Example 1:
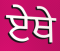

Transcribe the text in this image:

ਏਥੇ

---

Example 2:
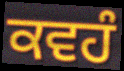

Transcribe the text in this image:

ਕਵਹੰ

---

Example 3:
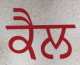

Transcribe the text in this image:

ਕੈਲ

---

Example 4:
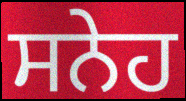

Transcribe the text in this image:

ਸਨੇਹ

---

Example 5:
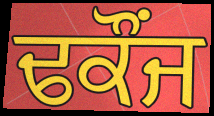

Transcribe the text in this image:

ਢਕੌਂਜ